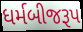
ધર્મબીજરૂપ